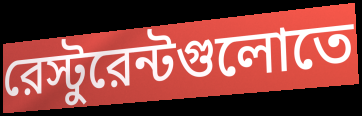
রেস্টুরেন্টগুলোতে